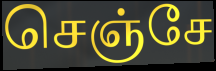
செஞ்சே